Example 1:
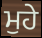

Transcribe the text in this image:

ਮੁਹੇ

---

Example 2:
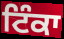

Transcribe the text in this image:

ਟਿੰਕਾ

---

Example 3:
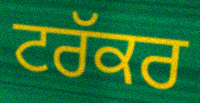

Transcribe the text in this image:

ਟਰੱਕਰ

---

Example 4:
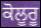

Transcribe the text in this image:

ਕੋਲੂਰੂ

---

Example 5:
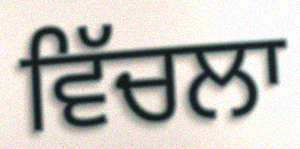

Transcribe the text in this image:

ਵਿੱਚਲਾ